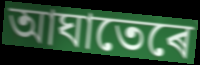
আঘাতেৰে